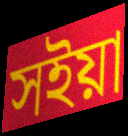
সইয়া